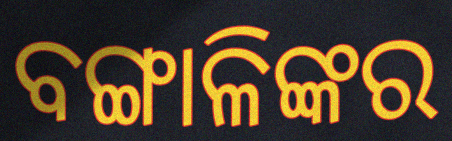
ବଙ୍ଗାଳିଙ୍କର